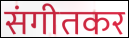
संगीतकर